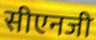
सीएनजी